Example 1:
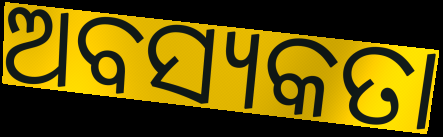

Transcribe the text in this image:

ଅବସ୍ୟକତା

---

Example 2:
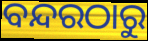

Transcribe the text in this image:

ବନ୍ଦରଠାରୁ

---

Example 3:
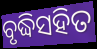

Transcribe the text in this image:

ବୃଦ୍ଧିସହିତ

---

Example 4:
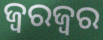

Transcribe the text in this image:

ଜ୍ୱରଜ୍ୱର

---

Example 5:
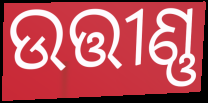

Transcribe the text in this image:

ଉତ୍ତୀଣ୍ଣ